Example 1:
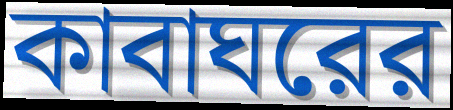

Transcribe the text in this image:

কাবাঘরের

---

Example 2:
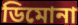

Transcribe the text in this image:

ডিমোনা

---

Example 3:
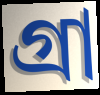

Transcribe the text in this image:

গ্রা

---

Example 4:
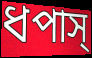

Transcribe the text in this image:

ধপাস্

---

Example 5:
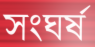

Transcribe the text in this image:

সংঘর্ষ